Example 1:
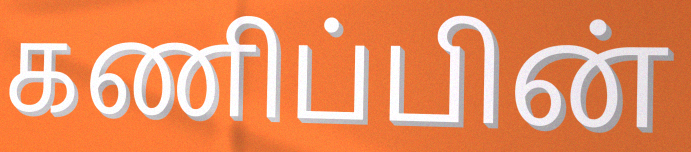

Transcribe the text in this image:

கணிப்பின்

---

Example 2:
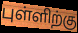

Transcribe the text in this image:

புள்ளிற்கு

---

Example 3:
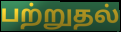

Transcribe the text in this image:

பற்றுதல்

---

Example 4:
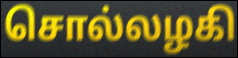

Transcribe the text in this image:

சொல்லழகி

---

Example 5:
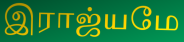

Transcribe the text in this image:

இராஜ்யமே